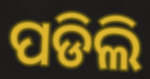
ପଡିଲି